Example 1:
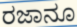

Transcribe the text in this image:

ರಜಾನೂ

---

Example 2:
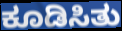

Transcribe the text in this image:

ಕೂಡಿಸಿತು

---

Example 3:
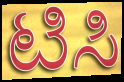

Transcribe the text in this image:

ಟಿಸಿ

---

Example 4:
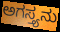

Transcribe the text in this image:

ಅಗಸ್ತ್ಯನು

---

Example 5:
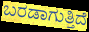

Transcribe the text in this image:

ಬರಡಾಗುತ್ತಿದೆ